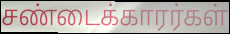
சண்டைக்காரர்கள்